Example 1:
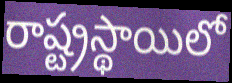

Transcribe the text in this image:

రాష్ట్రస్థాయిలో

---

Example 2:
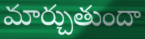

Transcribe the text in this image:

మార్చుతుందా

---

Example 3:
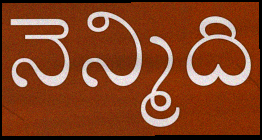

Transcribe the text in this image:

నెన్మిది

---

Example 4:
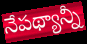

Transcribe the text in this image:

నేపథ్యాన్నీ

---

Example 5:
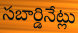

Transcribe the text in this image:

సబార్డినేట్లు